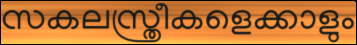
സകലസ്ത്രീകളെക്കാളും